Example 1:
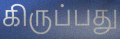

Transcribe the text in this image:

கிருப்பது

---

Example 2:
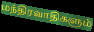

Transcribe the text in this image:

மந்திரவாதிகளும்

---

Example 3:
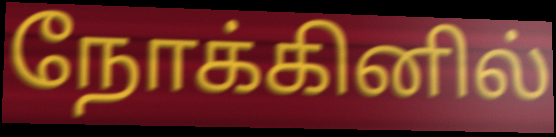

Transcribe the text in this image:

நோக்கினில்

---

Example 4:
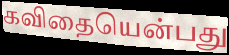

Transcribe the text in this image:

கவிதையென்பது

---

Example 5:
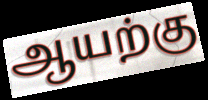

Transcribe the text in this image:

ஆயற்கு